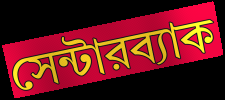
সেন্টারব্যাক